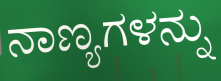
ನಾಣ್ಯಗಳನ್ನು